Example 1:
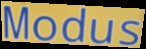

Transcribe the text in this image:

Modus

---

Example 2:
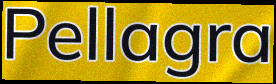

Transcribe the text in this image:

Pellagra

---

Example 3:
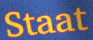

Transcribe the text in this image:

Staat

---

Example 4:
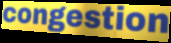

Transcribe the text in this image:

congestion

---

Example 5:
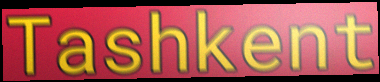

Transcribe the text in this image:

Tashkent